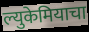
ल्युकेमियाचा